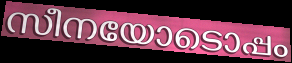
സീനയോടൊപ്പം